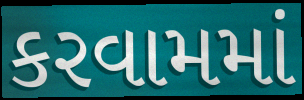
કરવામમાં